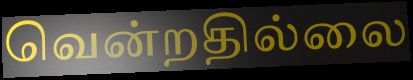
வென்றதில்லை